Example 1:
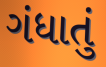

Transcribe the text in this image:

ગંધાતું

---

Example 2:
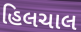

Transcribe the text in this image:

હિલચાલ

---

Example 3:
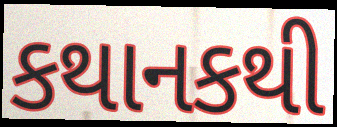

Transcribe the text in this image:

કથાનકથી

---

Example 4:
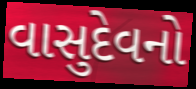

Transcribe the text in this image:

વાસુદેવનો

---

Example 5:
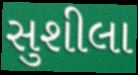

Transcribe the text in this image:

સુશીલા